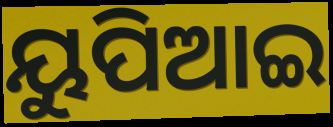
ୟୁପିଆଇ